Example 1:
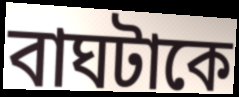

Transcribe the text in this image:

বাঘটাকে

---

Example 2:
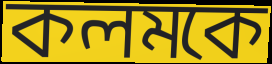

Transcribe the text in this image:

কলমকে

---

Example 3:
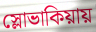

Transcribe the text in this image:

স্লোভাকিয়ায়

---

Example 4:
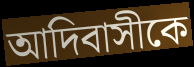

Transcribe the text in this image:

আদিবাসীকে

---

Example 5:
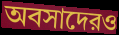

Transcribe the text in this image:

অবসাদেরও